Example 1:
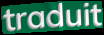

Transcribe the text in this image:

traduit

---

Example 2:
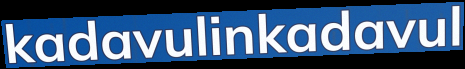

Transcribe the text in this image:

kadavulinkadavul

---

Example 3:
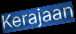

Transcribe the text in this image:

Kerajaan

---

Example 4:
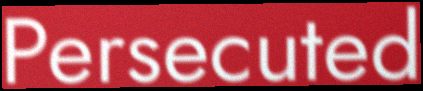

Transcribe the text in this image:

Persecuted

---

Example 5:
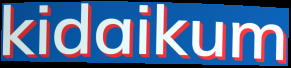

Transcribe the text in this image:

kidaikum